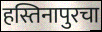
हस्तिनापुरचा